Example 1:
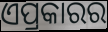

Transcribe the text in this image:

ଏପ୍ରକାରର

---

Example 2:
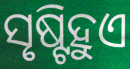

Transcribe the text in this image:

ସୃଷ୍ଟିହୁଏ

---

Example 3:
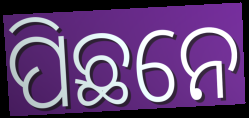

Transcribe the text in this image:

ପିଛନେ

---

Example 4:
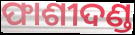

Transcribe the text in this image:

ଫାଶୀଦଣ୍ଡ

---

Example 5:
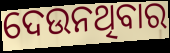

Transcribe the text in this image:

ଦେଉନଥିବାର